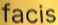
facis